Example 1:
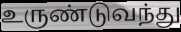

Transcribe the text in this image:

உருண்டுவந்து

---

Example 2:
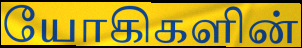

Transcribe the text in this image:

யோகிகளின்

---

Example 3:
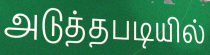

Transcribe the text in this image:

அடுத்தபடியில்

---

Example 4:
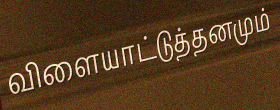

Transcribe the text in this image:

விளையாட்டுத்தனமும்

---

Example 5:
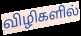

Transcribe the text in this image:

விழிகளில்